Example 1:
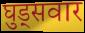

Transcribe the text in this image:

घुड्सवार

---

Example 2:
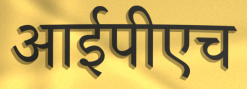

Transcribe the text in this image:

आईपीएच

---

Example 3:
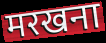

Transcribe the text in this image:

मरखना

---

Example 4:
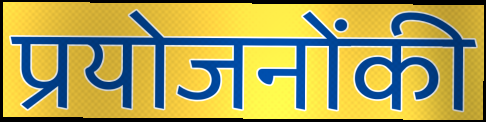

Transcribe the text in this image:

प्रयोजनोंकी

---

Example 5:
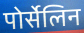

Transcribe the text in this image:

पोर्सेलिन